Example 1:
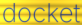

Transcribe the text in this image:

docket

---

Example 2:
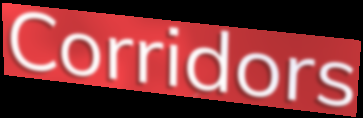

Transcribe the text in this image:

Corridors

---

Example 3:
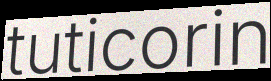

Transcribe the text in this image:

tuticorin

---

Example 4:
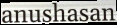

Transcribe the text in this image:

anushasan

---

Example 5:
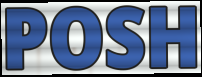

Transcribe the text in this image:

POSH